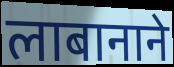
लाबानाने